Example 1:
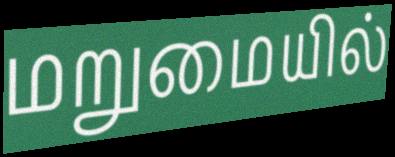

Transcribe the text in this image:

மறுமையில்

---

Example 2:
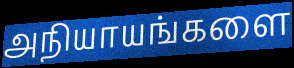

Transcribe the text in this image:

அநியாயங்களை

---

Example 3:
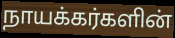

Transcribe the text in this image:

நாயக்கர்களின்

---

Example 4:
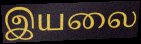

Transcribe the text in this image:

இயலை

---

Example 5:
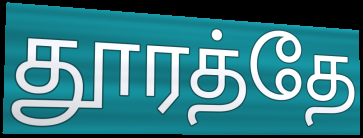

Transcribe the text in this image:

தூரத்தே